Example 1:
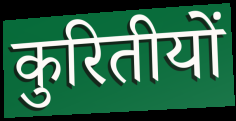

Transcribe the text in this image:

कुरितीयों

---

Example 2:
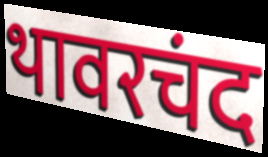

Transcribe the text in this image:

थावरचंद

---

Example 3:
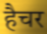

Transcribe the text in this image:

हैचर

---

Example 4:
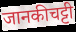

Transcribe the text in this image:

जानकीचट्टी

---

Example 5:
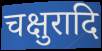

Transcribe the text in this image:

चक्षुरादि